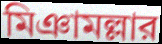
মিঞামল্লার